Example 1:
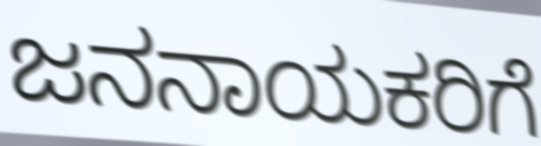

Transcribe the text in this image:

ಜನನಾಯಕರಿಗೆ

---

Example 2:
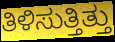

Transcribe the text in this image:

ತಿಳಿಸುತ್ತಿತ್ತು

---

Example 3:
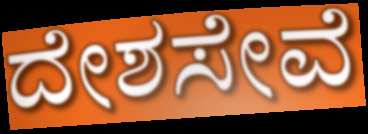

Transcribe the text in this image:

ದೇಶಸೇವೆ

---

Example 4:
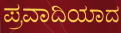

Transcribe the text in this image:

ಪ್ರವಾದಿಯಾದ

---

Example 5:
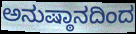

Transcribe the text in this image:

ಅನುಷ್ಠಾನದಿಂದ